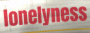
lonelyness